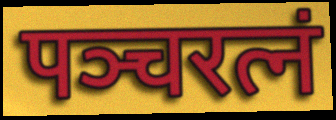
पञ्चरत्नं